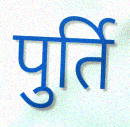
पुर्ति